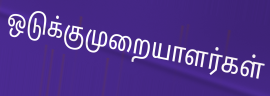
ஒடுக்குமுறையாளர்கள்